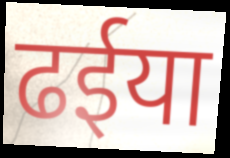
ढईया